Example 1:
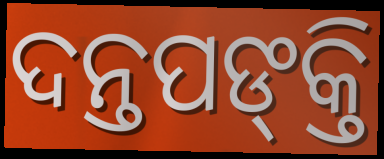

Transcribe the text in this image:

ଦନ୍ତପଙ୍‍କ୍ତି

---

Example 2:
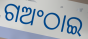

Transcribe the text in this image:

ଗଅଂଠାଇ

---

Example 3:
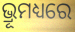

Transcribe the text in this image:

ଭ୍ରୂମଧ୍ୟରେ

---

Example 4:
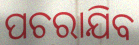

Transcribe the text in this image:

ପଚରାଯିବ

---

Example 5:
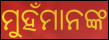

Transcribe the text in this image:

ମୁହଁମାନଙ୍କ